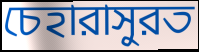
চেহারাসুরত